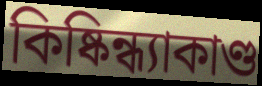
কিষ্কিন্ধ্যাকাণ্ড